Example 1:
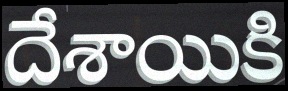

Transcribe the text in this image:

దేశాయికి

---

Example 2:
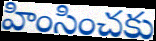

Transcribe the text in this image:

హింసించకు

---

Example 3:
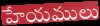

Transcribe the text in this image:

హేయములు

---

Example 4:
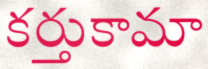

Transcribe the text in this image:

కర్తుకామా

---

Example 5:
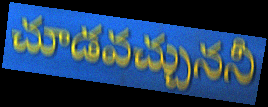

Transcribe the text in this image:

చూడవచ్చుననీ